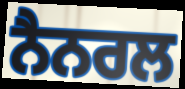
ਨੈਨਰਲ